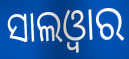
ସାଲଓ୍ଵାର